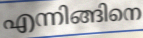
എന്നിങ്ങിനെ